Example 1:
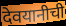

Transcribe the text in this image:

देवयानीची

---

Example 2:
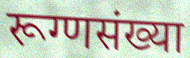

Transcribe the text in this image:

रूग्णसंख्या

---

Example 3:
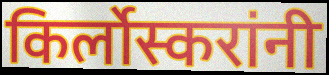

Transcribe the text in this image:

किर्लोस्करांनी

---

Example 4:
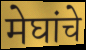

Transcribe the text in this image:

मेघांचे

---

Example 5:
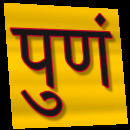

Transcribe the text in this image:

पुणं